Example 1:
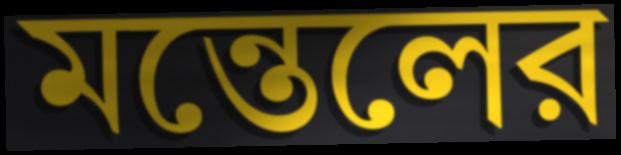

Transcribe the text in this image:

মন্তেলের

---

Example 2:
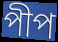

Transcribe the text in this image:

পীপ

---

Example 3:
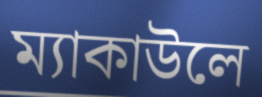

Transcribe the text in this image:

ম্যাকাউলে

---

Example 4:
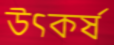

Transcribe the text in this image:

উৎকর্ষ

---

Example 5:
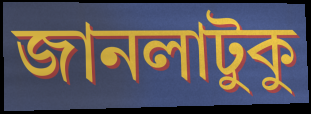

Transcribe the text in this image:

জানলাটুকু